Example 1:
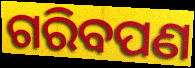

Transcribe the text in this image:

ଗରିବପଣ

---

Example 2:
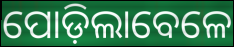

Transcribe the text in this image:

ପୋଡ଼ିଲାବେଳେ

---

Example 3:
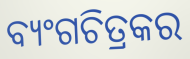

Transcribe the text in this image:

ବ୍ୟଂଗଚିତ୍ରକର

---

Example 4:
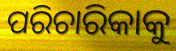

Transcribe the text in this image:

ପରିଚାରିକାକୁ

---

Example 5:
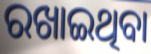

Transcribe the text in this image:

ରଖାଇଥିବା